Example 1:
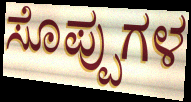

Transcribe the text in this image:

ಸೊಪ್ಪುಗಳ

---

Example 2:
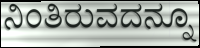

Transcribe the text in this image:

ನಿಂತಿರುವದನ್ನೂ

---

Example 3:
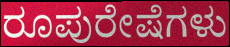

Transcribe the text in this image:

ರೂಪುರೇಷೆಗಳು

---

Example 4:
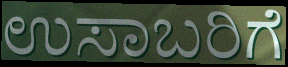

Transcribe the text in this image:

ಉಸಾಬರಿಗೆ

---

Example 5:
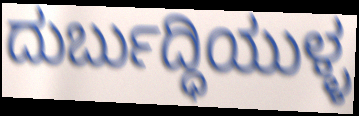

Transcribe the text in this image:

ದುರ್ಬುದ್ಧಿಯುಳ್ಳ